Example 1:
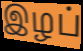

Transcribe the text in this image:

இழப்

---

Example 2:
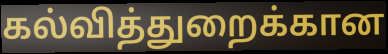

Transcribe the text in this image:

கல்வித்துறைக்கான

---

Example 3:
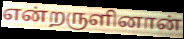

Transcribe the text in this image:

என்றருளினான்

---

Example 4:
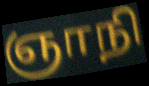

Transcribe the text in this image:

ஞாநி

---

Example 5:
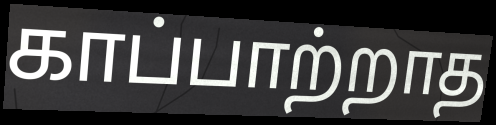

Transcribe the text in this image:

காப்பாற்றாத